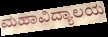
ಮಹಾವಿದ್ಯಾಲಯ